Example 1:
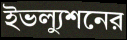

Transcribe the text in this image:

ইভল্যুশনের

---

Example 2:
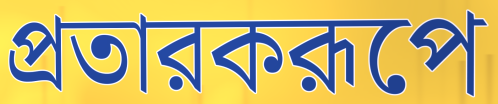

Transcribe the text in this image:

প্রতারকরূপে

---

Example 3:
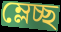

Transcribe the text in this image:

ম্লেচ্ছ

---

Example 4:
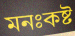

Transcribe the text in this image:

মনঃকষ্ট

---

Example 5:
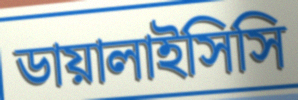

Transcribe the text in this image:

ডায়ালাইসিসি